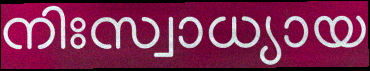
നിഃസ്വാധ്യായ